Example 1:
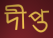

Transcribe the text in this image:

দীপ্ত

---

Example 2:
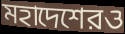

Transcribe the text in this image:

মহাদেশেরও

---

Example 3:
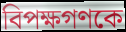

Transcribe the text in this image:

বিপক্ষগণকে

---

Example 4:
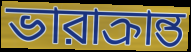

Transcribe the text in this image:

ভারাক্রান্ত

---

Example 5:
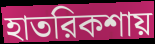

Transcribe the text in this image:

হাতরিকশায়